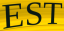
EST